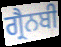
ਗ੍ਰੈਨਬੀ